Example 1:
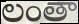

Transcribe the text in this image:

లంతా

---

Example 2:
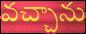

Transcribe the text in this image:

వచ్చాను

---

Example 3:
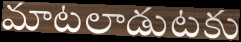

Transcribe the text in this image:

మాటలాడుటకు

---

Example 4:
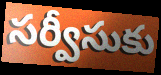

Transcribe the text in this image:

సర్వీసుకు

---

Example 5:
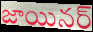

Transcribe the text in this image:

జాయినర్